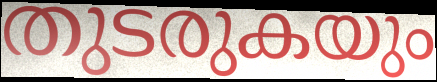
തുടരുകയും